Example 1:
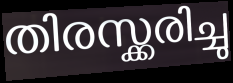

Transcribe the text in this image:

തിരസ്ക്കരിച്ചു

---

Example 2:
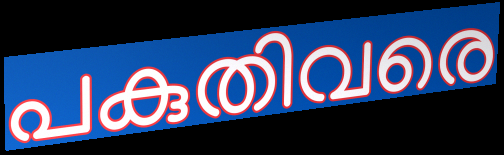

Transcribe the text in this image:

പകുതിവരെ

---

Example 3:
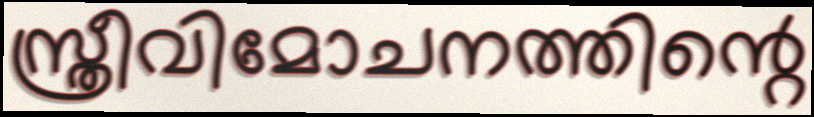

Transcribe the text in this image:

സ്ത്രീവിമോചനത്തിന്റെ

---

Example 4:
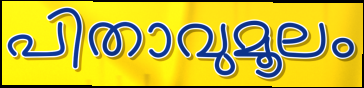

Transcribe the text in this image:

പിതാവുമൂലം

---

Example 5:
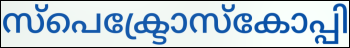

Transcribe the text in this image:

സ്പെക്ട്രോസ്കോപ്പി